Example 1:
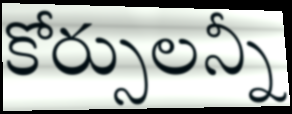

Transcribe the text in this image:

కోర్సులన్నీ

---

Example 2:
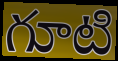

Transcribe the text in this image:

గూటి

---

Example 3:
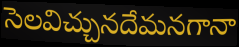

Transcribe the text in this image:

సెలవిచ్చునదేమనగానా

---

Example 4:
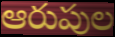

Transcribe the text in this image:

ఆరుపుల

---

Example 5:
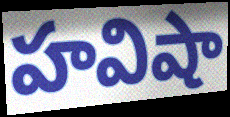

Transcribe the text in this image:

హవిషా